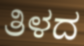
ತಿಳದ